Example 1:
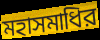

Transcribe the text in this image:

মহাসমাধির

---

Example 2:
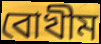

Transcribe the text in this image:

বোখীম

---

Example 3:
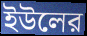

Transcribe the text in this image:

ইউলের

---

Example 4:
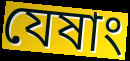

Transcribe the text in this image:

যেষাং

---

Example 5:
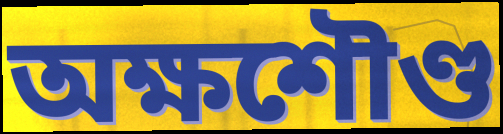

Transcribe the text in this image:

অক্ষশৌণ্ড